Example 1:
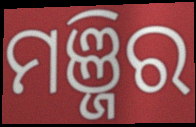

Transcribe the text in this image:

ମଞ୍ଜିର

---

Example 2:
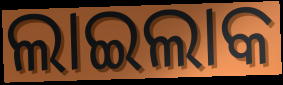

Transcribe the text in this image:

ଲାଇଲାକ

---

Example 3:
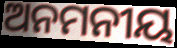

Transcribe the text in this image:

ଅନମନୀୟ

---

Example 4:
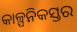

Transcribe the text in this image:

କାଳ୍ପନିକସ୍ତର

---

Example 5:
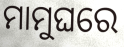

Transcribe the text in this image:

ମାମୁଘରେ